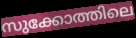
സുക്കോത്തിലെ